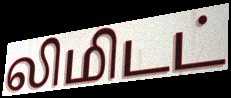
லிமிடட்